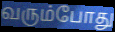
வரும்போது